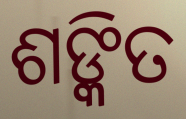
ଶଙ୍କିତ